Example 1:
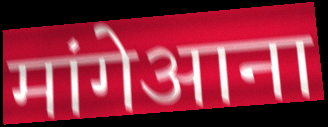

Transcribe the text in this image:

मांगेआना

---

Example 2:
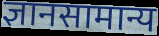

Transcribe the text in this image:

ज्ञानसामान्य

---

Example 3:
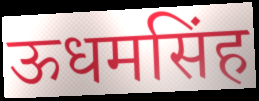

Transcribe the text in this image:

ऊधमसिंह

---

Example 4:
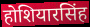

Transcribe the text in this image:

होशियारसिंह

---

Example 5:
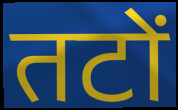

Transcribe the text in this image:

तटों